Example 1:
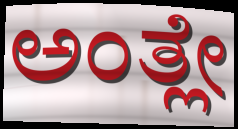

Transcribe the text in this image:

ಅಂತ್ಲೇ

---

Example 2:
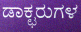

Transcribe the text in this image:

ಡಾಕ್ಟರುಗಳ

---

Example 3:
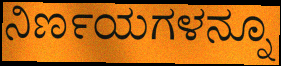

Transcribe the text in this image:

ನಿರ್ಣಯಗಳನ್ನೂ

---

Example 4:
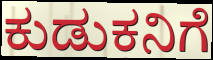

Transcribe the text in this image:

ಕುಡುಕನಿಗೆ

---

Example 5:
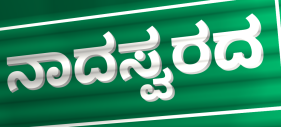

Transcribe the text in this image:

ನಾದಸ್ವರದ